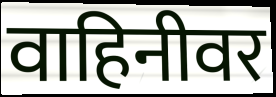
वाहिनीवर